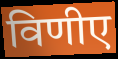
विणीए